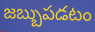
జబ్బుపడటం